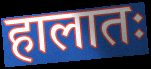
हालातः